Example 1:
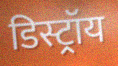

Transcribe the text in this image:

डिस्ट्रॉय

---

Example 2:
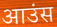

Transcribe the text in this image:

आउंस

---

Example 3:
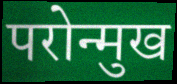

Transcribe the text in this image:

परोन्मुख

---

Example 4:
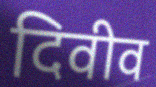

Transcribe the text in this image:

दिवीव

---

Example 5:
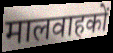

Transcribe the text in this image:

मालवाहकों